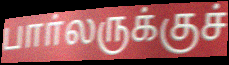
பார்லருக்குச்